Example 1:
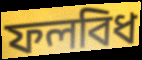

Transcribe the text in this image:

ফলবিধ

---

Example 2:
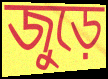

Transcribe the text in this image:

জুড়ে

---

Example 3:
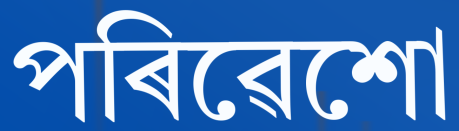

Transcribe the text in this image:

পৰিৱেশো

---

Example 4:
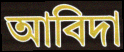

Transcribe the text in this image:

আবিদা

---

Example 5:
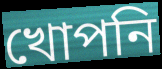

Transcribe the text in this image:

খোপনি